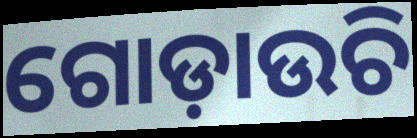
ଗୋଡ଼ାଉଚି